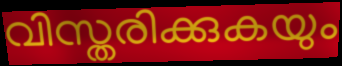
വിസ്തരിക്കുകയും